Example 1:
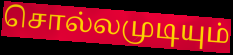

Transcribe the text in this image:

சொல்லமுடியும்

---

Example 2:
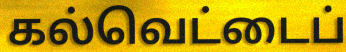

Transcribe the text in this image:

கல்வெட்டைப்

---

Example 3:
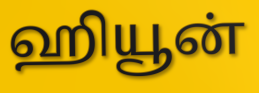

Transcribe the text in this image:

ஹியூன்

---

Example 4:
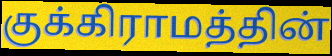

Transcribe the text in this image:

குக்கிராமத்தின்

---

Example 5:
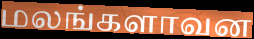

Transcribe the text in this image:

மலங்களாவன